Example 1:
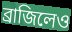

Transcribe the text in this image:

ব্রাজিলেও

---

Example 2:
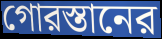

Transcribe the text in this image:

গোরস্তানের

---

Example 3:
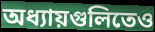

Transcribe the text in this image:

অধ্যায়গুলিতেও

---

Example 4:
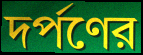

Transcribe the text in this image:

দর্পণের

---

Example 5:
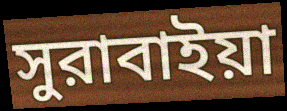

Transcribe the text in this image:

সুরাবাইয়া